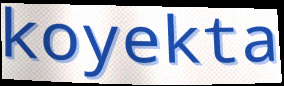
koyekta